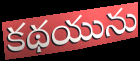
కథయును